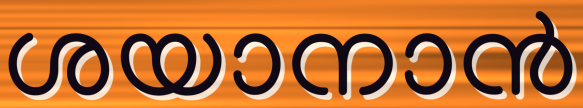
ശയാനാൻ